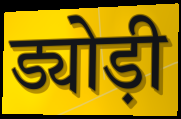
ड्योड़ी